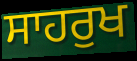
ਸਾਹਰੁਖ